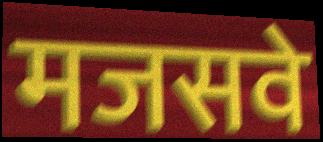
मजसवे